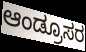
ಆಂಡ್ರೂಸರ